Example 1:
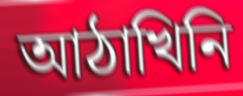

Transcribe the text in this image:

আঠাখিনি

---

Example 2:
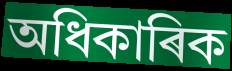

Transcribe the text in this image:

অধিকাৰিক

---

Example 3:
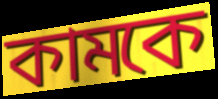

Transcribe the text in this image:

কামকে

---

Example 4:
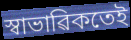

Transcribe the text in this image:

স্বাভাৱিকতেই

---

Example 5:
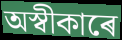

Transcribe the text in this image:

অস্বীকাৰে